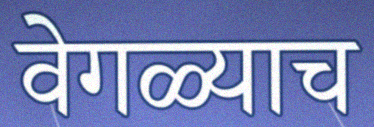
वेगळ्याच